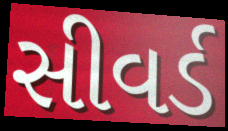
સીવર્ડ